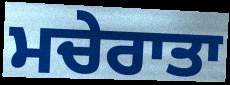
ਮਚੇਰਾਤਾ